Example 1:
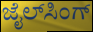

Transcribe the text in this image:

ಜೈಲ್‌ಸಿಂಗ್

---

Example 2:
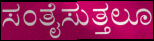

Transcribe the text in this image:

ಸಂತೈಸುತ್ತಲೂ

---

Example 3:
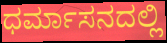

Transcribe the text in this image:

ಧರ್ಮಾಸನದಲ್ಲಿ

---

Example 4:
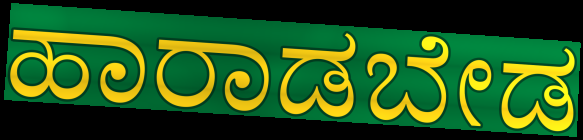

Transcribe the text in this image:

ಹಾರಾಡಬೇಡ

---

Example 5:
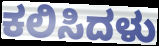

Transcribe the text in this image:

ಕಲಿಸಿದಳು